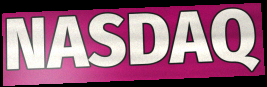
NASDAQ